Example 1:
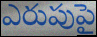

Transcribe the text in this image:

ఎరుపుపై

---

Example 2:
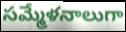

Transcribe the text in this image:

సమ్మేళనాలుగా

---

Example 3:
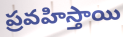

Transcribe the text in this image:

ప్రవహిస్తాయి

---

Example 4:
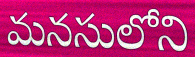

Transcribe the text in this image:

మనసులోని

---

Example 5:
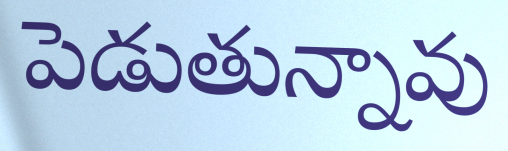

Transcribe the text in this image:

పెడుతున్నావు